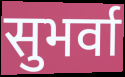
सुभर्वा